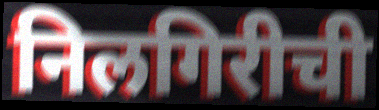
निलगिरीची